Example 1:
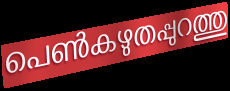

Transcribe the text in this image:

പെൺകഴുതപ്പുറത്തു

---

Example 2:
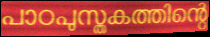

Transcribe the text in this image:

പാഠപുസ്തകത്തിന്റെ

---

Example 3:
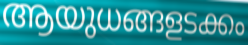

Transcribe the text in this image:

ആയുധങ്ങളടക്കം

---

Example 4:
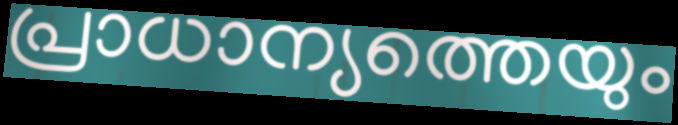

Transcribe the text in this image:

പ്രാധാന്യത്തെയും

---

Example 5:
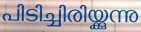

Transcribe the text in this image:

പിടിച്ചിരിയ്ക്കുന്നു